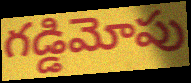
గడ్డిమోపు